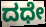
ದಧೇ